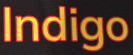
Indigo